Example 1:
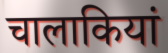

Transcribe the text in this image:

चालाकियां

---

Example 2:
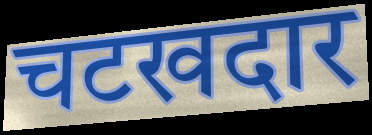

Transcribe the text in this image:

चटखदार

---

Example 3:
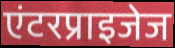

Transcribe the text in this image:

एंटरप्राइजेज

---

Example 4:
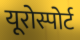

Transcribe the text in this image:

यूरोस्पोर्ट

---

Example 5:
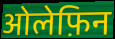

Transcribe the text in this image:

ओलेफ़िन